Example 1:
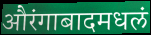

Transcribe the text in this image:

औरंगाबादमधलं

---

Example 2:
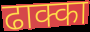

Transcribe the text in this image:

ढाक्का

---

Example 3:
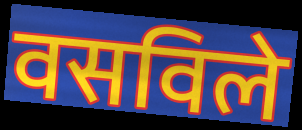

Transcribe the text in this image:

वसविले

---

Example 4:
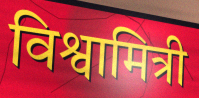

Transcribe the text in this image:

विश्वामित्री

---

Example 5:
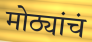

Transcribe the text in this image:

मोठ्यांचं